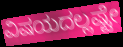
ವಿಷಯದಲ್ಲಷ್ಟೇ